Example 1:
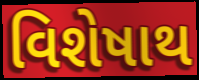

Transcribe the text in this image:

વિશેષાથ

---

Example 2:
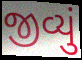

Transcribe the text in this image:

જીવ્યું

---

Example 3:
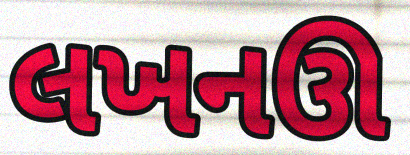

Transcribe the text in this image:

લખનઊ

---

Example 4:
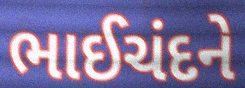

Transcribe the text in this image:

ભાઈચંદને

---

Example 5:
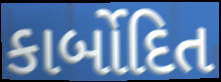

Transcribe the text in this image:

કાર્બોદિત